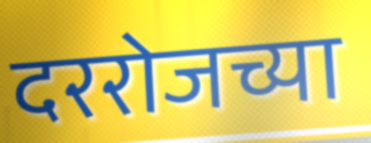
दररोजच्या